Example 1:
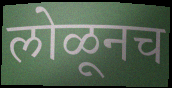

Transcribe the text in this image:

लोळूनच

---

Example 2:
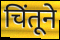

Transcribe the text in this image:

चिंतूने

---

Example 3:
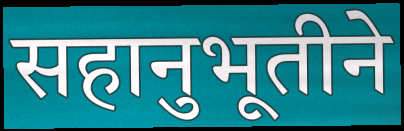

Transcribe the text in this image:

सहानुभूतीने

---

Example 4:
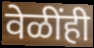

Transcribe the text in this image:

वेळींही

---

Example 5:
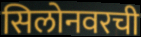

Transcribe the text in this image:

सिलोनवरची